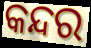
କନ୍ଦର